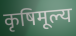
कृषिमूल्य